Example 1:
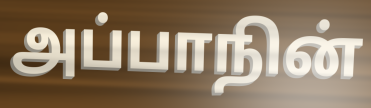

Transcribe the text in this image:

அப்பாநின்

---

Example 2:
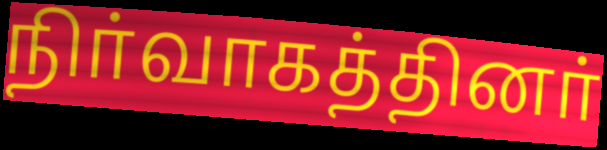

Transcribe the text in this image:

நிர்வாகத்தினர்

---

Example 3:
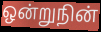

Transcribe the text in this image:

ஒன்றுநின்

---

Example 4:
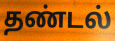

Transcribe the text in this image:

தண்டல்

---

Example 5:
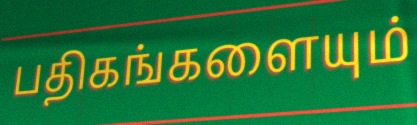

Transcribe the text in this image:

பதிகங்களையும்